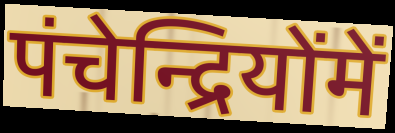
पंचेन्द्रियोंमें